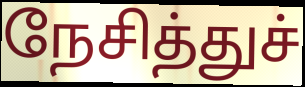
நேசித்துச்